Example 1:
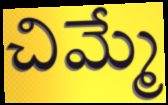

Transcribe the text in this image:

చిమ్మే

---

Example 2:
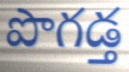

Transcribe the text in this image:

పొగడ్త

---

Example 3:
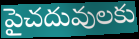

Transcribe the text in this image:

పైచదువులకు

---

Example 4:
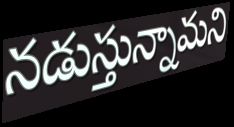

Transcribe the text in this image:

నడుస్తున్నామని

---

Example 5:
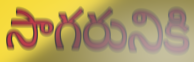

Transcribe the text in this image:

సాగరునికి